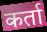
कर्ता